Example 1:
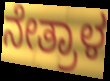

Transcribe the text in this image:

ನೇತ್ರಾಳ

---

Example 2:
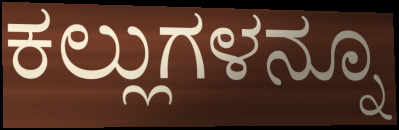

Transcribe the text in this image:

ಕಲ್ಲುಗಳನ್ನೂ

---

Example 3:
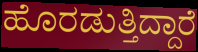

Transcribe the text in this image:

ಹೊರಡುತ್ತಿದ್ದಾರೆ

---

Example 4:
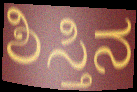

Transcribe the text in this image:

ಶಿಸ್ತಿನ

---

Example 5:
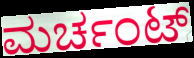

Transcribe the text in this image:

ಮರ್ಚಂಟ್